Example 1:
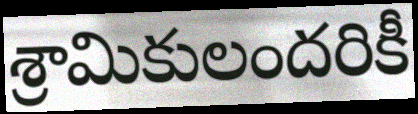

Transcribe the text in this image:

శ్రామికులందరికీ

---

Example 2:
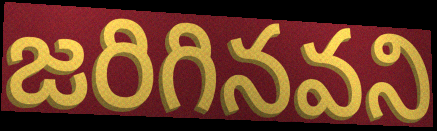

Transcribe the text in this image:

జరిగినవని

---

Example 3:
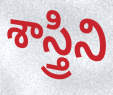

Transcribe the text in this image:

శాస్త్రిని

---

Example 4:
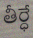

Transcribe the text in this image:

తీర్ధే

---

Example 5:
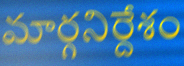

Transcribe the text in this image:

మార్గనిర్దేశం